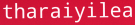
tharaiyilea